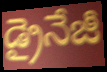
డ్రైనేజీ